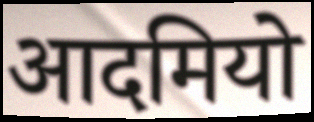
आदमियो